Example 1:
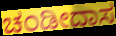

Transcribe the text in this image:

ಚಂಡೀದಾಸ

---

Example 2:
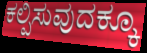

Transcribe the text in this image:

ಕಲ್ಪಿಸುವುದಕ್ಕೂ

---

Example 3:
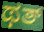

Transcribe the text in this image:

ಥತ್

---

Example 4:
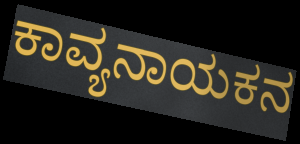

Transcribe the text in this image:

ಕಾವ್ಯನಾಯಕನ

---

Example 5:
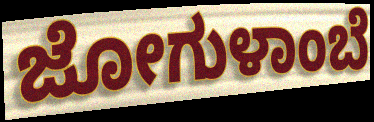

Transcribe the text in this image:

ಜೋಗುಳಾಂಬೆ